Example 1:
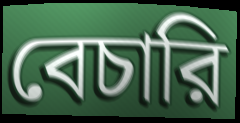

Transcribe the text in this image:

বেচারি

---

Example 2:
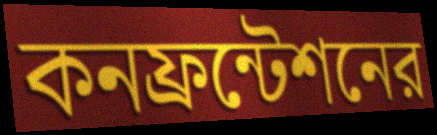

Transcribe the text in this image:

কনফ্রন্টেশনের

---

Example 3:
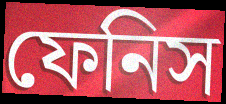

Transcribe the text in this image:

ফেনিস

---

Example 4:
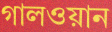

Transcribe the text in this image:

গালওয়ান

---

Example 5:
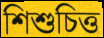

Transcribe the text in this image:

শিশুচিত্ত